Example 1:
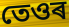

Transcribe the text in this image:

তেওৰ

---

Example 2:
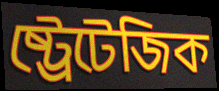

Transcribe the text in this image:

ষ্ট্ৰেটেজিক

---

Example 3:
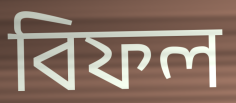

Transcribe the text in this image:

বিফল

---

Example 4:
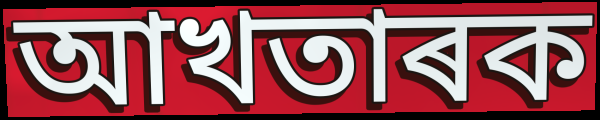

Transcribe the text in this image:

আখতাৰক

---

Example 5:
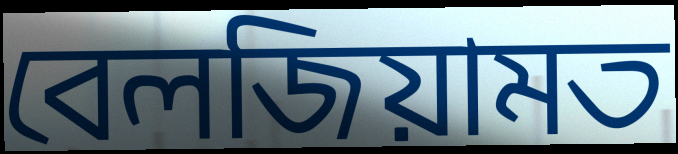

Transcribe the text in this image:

বেলজিয়ামত